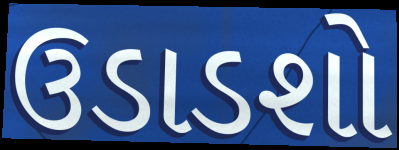
ઉડાડશો